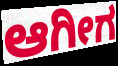
ಆಗೀಗ